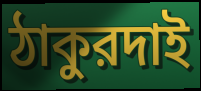
ঠাকুরদাই